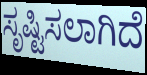
ಸೃಷ್ಟಿಸಲಾಗಿದೆ